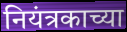
नियंत्रकाच्या